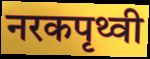
नरकपृथ्वी